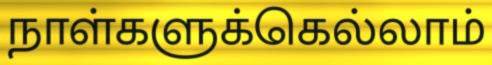
நாள்களுக்கெல்லாம்